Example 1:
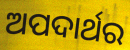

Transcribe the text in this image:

ଅପଦାର୍ଥର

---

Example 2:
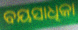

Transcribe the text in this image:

ବୟସାଧିକା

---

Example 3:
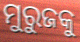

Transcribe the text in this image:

ମୁରୁଜକୁ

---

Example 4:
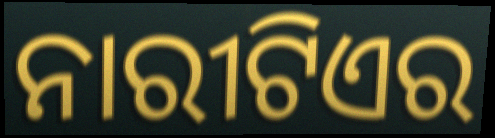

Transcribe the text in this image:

ନାରୀଟିଏର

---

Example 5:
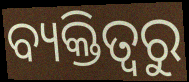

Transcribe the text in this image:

ବ୍ୟକ୍ତିତ୍ଵରୁ